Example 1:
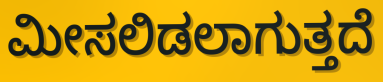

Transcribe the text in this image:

ಮೀಸಲಿಡಲಾಗುತ್ತದೆ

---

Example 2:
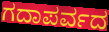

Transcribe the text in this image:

ಗದಾಪರ್ವದ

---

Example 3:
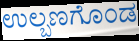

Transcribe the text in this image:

ಉಲ್ಬಣಗೊಂಡ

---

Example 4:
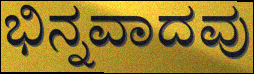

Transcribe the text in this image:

ಭಿನ್ನವಾದವು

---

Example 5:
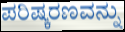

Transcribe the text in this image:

ಪರಿಷ್ಕರಣವನ್ನು